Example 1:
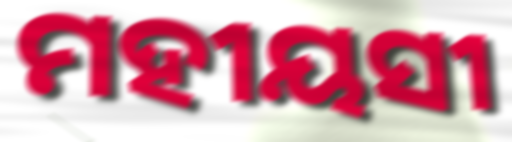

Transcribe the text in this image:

ମହୀୟସୀ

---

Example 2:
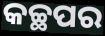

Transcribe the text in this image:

କଚ୍ଛପର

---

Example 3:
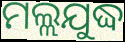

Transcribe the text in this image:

ମଲ୍ଲଯୁଦ୍ଧ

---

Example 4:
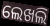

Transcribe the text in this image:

ଲେଖଲି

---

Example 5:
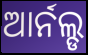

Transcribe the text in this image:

ଆର୍ନଲ୍ଡ